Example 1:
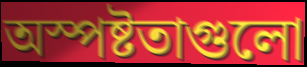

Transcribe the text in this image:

অস্পষ্টতাগুলো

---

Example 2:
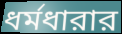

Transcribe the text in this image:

ধর্মধারার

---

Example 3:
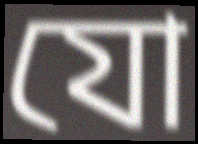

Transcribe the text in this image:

যো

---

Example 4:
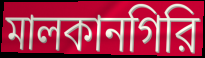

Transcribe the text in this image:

মালকানগিরি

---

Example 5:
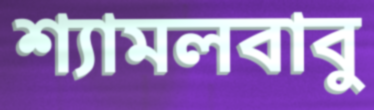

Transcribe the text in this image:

শ্যামলবাবু